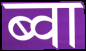
ब्वा